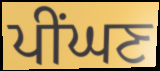
ਪੀਂਘਣ